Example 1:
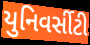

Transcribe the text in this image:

યુનિવર્સીટી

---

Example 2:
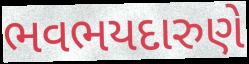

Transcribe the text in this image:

ભવભયદારુણે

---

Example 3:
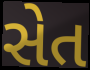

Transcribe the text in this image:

સેત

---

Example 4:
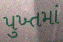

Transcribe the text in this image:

પુખ્તમાં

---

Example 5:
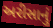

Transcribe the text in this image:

અરીસાનું